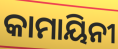
କାମାୟିନୀ